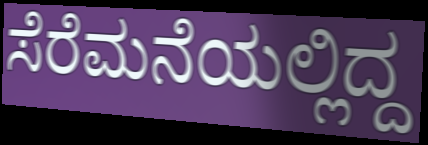
ಸೆರೆಮನೆಯಲ್ಲಿದ್ದ